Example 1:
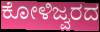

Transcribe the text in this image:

ಕೋಳಿಜ್ವರದ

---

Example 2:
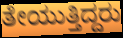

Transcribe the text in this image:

ತೇಯುತ್ತಿದ್ದರು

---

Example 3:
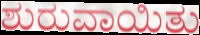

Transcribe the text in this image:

ಶುರುವಾಯಿತು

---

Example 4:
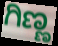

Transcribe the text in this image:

ಗಿಣ್ಣ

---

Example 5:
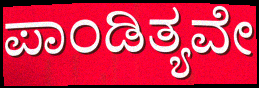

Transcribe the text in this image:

ಪಾಂಡಿತ್ಯವೇ